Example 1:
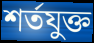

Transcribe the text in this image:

শর্তযুক্ত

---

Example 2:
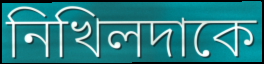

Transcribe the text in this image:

নিখিলদাকে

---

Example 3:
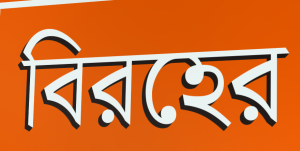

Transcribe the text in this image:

বিরহের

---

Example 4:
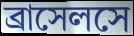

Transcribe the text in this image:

ব্রাসেলসে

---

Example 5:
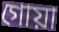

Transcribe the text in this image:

গোয়া